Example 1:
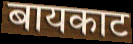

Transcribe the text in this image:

बायकाट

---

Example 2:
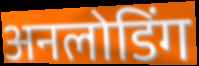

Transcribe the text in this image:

अनलोडिंग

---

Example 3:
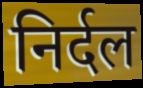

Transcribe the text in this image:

निर्दल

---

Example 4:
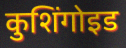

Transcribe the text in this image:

कुशिंगोइड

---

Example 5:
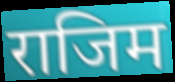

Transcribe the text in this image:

राजिम